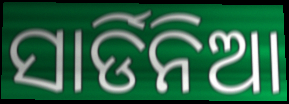
ସାର୍ଡିନିଆ